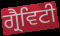
ਗ੍ਰੈਵਿਟੀ